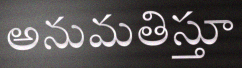
అనుమతిస్తూ